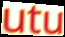
utu